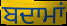
ਬਦਾਮਾਂ